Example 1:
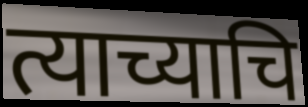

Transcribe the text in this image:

त्याच्याचि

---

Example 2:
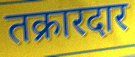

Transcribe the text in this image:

तक्रारदार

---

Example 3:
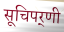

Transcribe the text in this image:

सूचिपर्णी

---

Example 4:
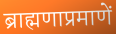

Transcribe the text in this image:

ब्राह्मणाप्रमाणें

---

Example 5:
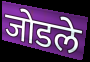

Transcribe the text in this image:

जोडले